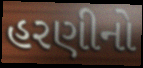
હરણીનો